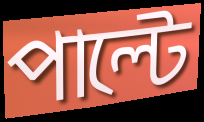
পাল্টে